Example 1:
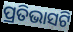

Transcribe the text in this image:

ପ୍ରତିଭାସଟି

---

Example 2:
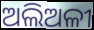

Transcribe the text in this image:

ଅଲିଅଳୀ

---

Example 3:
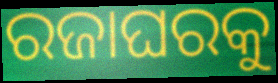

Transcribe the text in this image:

ରଜାଘରକୁ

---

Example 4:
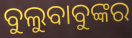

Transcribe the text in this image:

ବୁଲୁବାବୁଙ୍କର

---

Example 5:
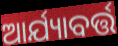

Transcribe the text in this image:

ଆର୍ଯ୍ୟାବର୍ତ୍ତ